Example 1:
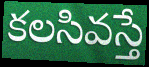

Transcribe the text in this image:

కలసివస్తే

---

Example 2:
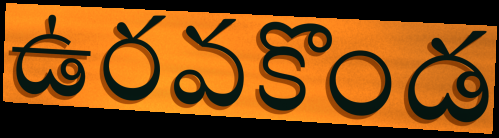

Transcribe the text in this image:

ఉరవకొండ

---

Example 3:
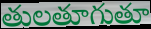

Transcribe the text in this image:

తులతూగుతూ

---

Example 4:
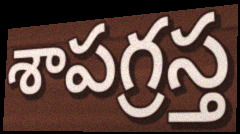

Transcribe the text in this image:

శాపగ్రస్త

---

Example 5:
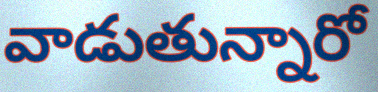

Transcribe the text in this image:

వాడుతున్నారో